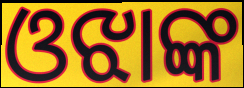
ଓଝାଙ୍କ